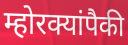
म्होरक्यांपैकी